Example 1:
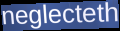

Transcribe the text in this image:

neglecteth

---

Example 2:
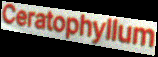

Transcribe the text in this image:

Ceratophyllum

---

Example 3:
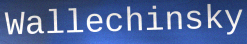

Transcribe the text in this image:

Wallechinsky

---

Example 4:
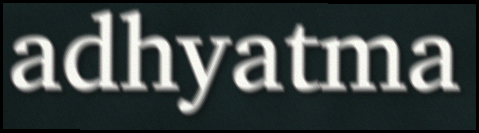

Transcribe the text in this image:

adhyatma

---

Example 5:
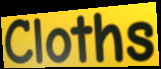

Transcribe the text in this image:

Cloths